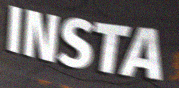
INSTA